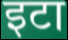
इटा